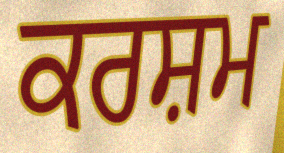
ਕਰਸ਼ਮ